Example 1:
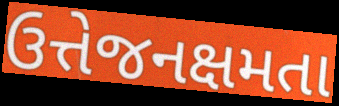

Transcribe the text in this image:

ઉત્તેજનક્ષમતા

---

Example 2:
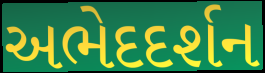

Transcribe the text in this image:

અભેદદર્શન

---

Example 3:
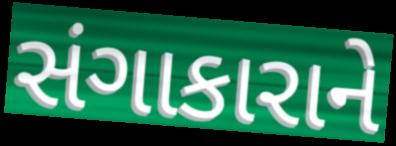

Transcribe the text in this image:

સંગાકારાને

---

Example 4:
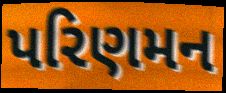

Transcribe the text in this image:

પરિણમન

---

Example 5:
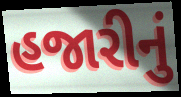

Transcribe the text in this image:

હજારીનું